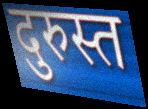
दुरुस्त